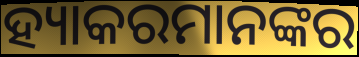
ହ୍ୟାକରମାନଙ୍କର